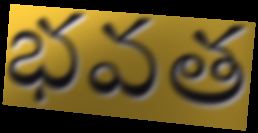
భవత